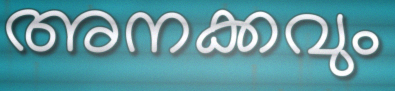
അനക്കവും